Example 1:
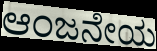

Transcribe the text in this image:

ಆಂಜನೇಯ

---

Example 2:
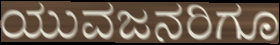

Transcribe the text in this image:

ಯುವಜನರಿಗೂ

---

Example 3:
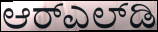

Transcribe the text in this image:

ಆರ್‌ಎಲ್‌ಡಿ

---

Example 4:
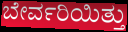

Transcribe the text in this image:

ಬೇರ್ವರಿಯಿತ್ತು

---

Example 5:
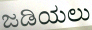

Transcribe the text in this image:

ಜಡಿಯಲು